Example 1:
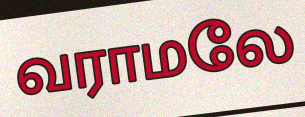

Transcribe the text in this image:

வராமலே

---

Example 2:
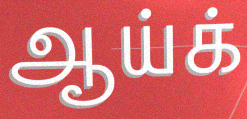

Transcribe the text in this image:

ஆய்க்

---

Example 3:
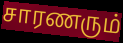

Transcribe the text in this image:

சாரணரும்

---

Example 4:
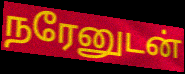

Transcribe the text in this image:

நரேனுடன்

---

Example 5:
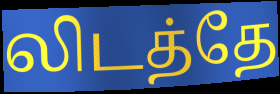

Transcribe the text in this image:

லிடத்தே